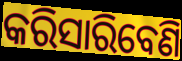
କରିସାରିବେଣି